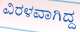
ವಿರಳವಾಗಿದ್ದ